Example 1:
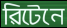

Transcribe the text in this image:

ৱিটেনে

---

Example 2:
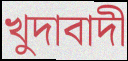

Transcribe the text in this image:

খুদাবাদী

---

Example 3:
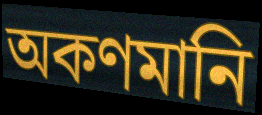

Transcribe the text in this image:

অকণমানি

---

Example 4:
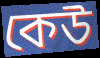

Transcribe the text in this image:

কেউ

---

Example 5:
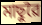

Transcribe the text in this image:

মাছুৱৈ